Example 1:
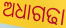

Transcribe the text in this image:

ଅଧାଗଢା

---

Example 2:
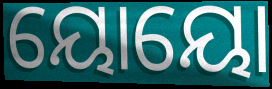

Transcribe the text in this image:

ୟୋୟୋ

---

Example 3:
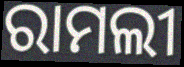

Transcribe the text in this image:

ରାମଲୀ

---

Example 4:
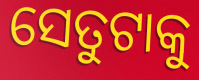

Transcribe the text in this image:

ସେତୁଟାକୁ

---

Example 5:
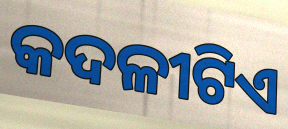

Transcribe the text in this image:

କଦଳୀଟିଏ